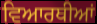
ਵਿਆਰਥੀਆਂ